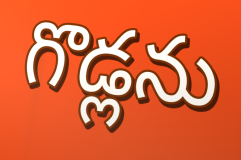
గొడ్లను